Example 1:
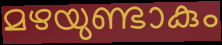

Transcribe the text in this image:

മഴയുണ്ടാകും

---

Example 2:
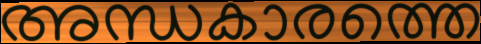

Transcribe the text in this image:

അന്ധകാരത്തെ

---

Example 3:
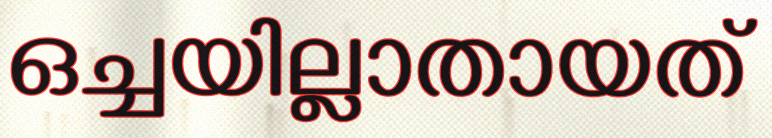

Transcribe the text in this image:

ഒച്ചയില്ലാതായത്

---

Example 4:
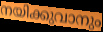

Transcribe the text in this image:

നയിക്കുവാനും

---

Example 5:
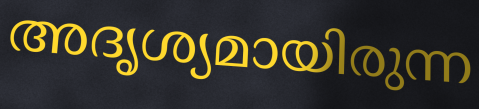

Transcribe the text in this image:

അദൃശ്യമായിരുന്ന